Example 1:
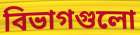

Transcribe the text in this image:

বিভাগগুলো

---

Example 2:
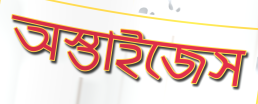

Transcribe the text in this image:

অস্তাইজেস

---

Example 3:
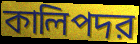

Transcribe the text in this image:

কালিপদর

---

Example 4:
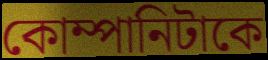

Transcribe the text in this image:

কোম্পানিটাকে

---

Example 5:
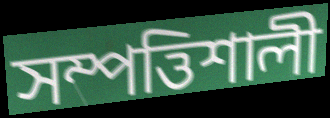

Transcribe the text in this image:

সম্পত্তিশালী